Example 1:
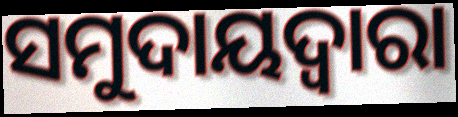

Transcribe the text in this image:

ସମୁଦାୟଦ୍ୱାରା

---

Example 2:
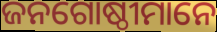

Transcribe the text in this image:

ଜନଗୋଷ୍ଠୀମାନେ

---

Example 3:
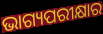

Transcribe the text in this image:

ଭାଗ୍ୟପରୀକ୍ଷାର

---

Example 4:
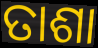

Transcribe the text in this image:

ତାଶା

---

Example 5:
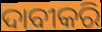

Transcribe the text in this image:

ଦାବୀକରି